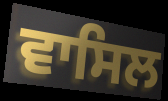
ਵਾਸਿਲ